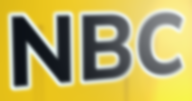
NBC